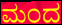
ಮಂದ